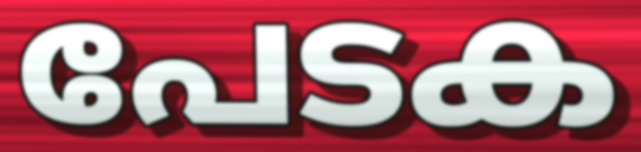
പേടക